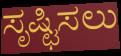
ಸೃಷ್ಟಿಸಲು